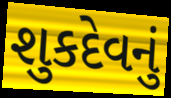
શુકદેવનું